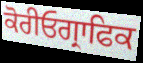
ਕੋਰੀਓਗ੍ਰਾਫਿਕ